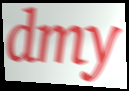
dmy